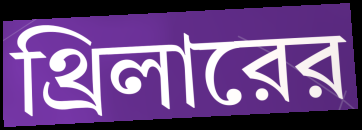
থ্রিলারের